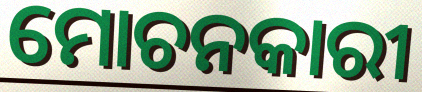
ମୋଚନକାରୀ